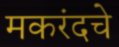
मकरंदचे